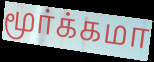
மூர்க்கமா